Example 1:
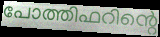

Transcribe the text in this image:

പോത്തിഫറിന്റെ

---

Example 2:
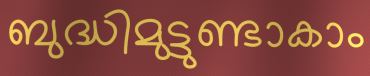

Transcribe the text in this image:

ബുദ്ധിമുട്ടുണ്ടാകാം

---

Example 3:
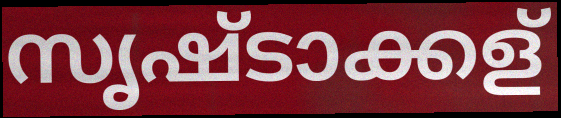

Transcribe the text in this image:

സൃഷ്ടാക്കള്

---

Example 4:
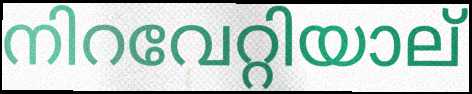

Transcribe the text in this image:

നിറവേറ്റിയാല്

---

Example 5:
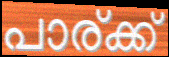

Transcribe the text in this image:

പാര്ക്ക്